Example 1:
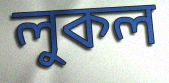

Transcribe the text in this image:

লুকল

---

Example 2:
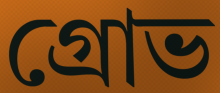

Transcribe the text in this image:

গ্রোভ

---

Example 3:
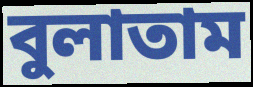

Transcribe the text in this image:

বুলাতাম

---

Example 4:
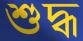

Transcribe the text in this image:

শুদ্ধ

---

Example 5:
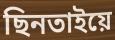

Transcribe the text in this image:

ছিনতাইয়ে